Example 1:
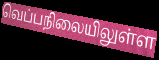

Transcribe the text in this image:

வெப்பநிலையிலுள்ள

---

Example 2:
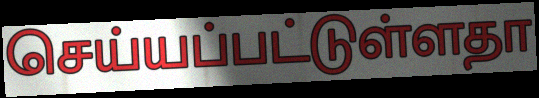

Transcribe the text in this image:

செய்யப்பட்டுள்ளதா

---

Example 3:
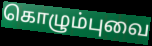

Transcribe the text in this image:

கொழும்புவை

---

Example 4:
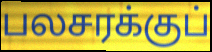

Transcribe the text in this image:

பலசரக்குப்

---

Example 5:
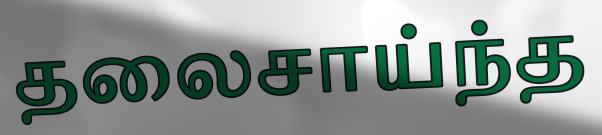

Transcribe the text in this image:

தலைசாய்ந்த